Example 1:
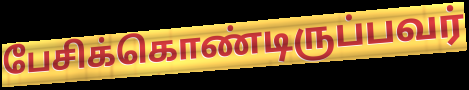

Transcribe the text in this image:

பேசிக்கொண்டிருப்பவர்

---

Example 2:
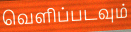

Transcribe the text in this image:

வெளிப்படவும்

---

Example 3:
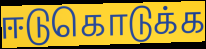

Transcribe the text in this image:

ஈடுகொடுக்க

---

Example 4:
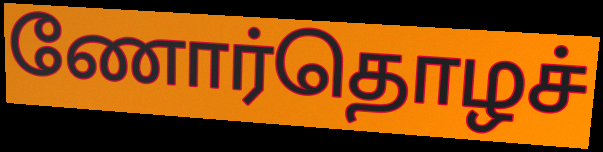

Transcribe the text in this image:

ணோர்தொழச்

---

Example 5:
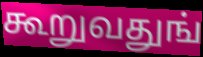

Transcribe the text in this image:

கூறுவதுங்